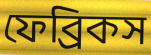
ফেব্রিকস